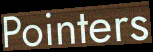
Pointers